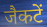
जैकटें